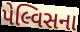
પેલ્વિસના